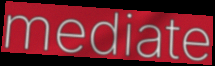
mediate